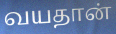
வயதான்